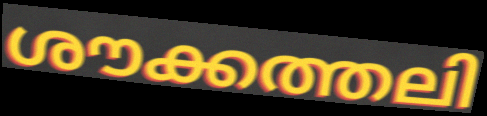
ശൗക്കത്തലി